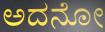
ಅದನೋ